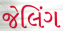
જેલિંગ